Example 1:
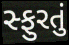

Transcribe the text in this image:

સ્ફુરતું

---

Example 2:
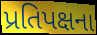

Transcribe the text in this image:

પ્રતિપક્ષના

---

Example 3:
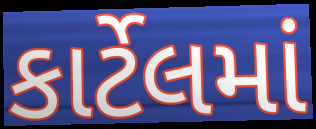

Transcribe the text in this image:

કાર્ટેલમાં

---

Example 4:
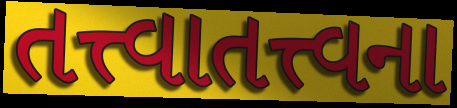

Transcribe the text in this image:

તત્ત્વાતત્ત્વના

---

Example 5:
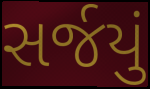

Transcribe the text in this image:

સર્જયું